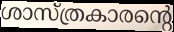
ശാസ്ത്രകാരന്റെ